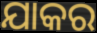
ଯାକର